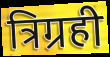
त्रिग्रही